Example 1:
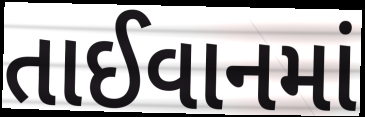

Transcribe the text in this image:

તાઈવાનમાં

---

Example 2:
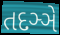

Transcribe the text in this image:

તદઞ્ઞે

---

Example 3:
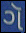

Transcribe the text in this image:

ગૅ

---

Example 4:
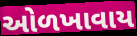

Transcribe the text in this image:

ઓળખાવાય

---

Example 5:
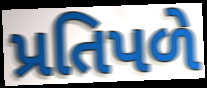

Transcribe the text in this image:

પ્રતિપળે